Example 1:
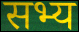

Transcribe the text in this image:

सभ्य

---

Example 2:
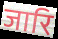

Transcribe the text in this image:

जारि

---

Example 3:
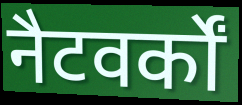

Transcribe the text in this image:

नैटवर्कों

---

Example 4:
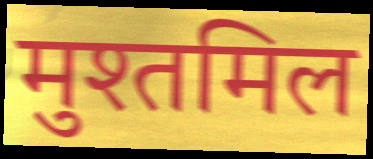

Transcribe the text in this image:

मुश्तमिल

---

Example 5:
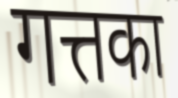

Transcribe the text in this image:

गत्तका